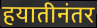
हयातीनंतर